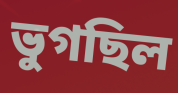
ভুগছিল